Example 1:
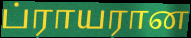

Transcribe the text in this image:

ப்ராயரான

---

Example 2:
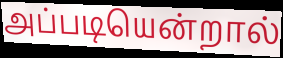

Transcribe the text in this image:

அப்படியென்றால்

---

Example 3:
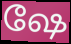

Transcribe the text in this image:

ஷே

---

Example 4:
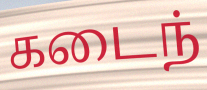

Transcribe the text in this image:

கடைந்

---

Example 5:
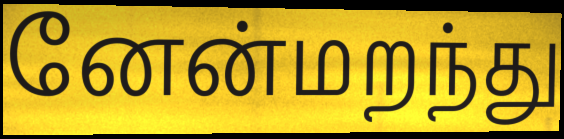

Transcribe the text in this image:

னேன்மறந்து